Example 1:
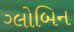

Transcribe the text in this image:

ગ્લોબિન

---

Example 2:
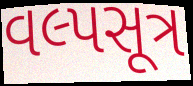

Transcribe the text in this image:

વલ્પસૂત્ર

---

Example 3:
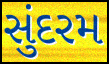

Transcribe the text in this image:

સુંદરમ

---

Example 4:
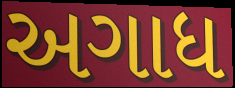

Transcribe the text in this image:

અગાધ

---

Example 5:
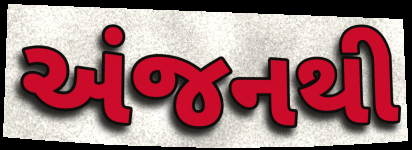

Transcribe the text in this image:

અંજનથી